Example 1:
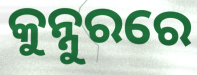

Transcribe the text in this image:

କୁନ୍ନୁରରେ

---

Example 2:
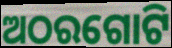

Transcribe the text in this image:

ଅଠରଗୋଟି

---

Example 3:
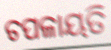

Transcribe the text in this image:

ଚପଳାୟତି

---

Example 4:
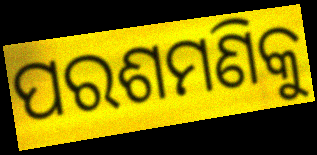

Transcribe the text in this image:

ପରଶମଣିକୁ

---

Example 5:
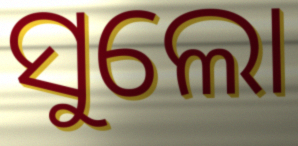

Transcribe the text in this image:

ସୁଲୋ